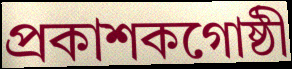
প্রকাশকগোষ্ঠী